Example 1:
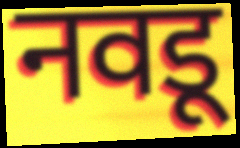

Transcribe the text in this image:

नवडू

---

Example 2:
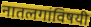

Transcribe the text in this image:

नातलगांविषयी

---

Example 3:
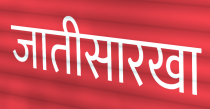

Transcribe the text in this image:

जातीसारखा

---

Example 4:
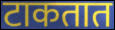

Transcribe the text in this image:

टाकतात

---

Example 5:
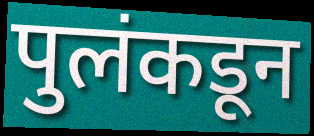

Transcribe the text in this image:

पुलंकडून